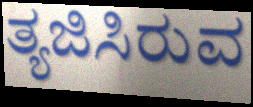
ತ್ಯಜಿಸಿರುವ